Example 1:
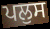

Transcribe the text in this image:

ਪਲੁਸ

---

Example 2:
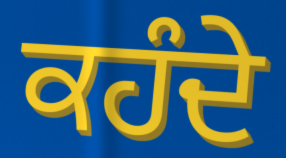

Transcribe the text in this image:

ਕਹੰਦੇ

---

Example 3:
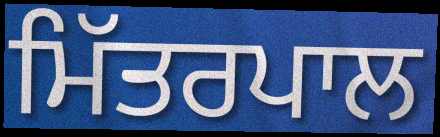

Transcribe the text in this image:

ਮਿੱਤਰਪਾਲ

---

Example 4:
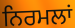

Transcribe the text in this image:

ਨਿਰਮਲਾਂ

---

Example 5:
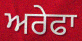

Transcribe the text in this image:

ਅਰੇਫਾ